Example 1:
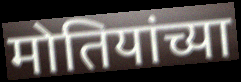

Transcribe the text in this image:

मोतियांच्या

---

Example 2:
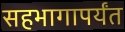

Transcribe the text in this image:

सहभागापर्यंत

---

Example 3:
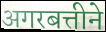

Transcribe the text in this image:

अगरबत्तीने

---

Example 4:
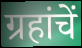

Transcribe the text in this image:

ग्रहांचें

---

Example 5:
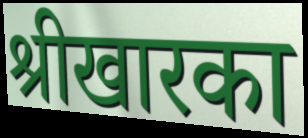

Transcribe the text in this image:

श्रीखारका